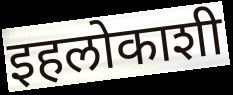
इहलोकाशी